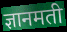
ज्ञानमती